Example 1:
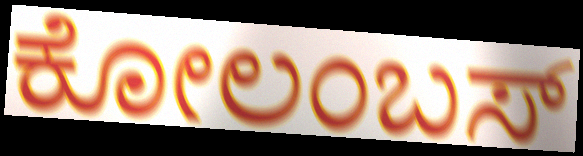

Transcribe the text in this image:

ಕೋಲಂಬಸ್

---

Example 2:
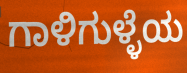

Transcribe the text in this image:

ಗಾಳಿಗುಳ್ಳೆಯ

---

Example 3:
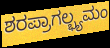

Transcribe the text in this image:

ಶರಪ್ರಾಗಲ್ಭ್ಯಮಂ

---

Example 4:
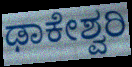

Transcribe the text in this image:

ಢಾಕೇಶ್ವರಿ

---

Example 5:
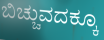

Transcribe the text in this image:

ಬಿಚ್ಚುವದಕ್ಕೂ